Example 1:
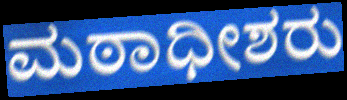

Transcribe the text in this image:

ಮಠಾಧೀಶರು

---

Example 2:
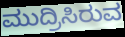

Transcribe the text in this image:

ಮುದ್ರಿಸಿರುವ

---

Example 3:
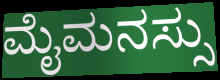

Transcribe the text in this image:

ಮೈಮನಸ್ಸು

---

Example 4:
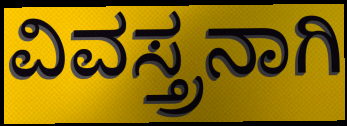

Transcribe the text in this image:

ವಿವಸ್ತ್ರನಾಗಿ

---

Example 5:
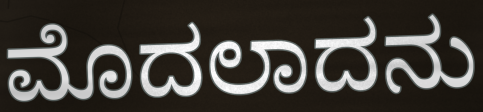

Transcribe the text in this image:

ಮೊದಲಾದನು